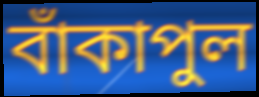
বাঁকাপুল